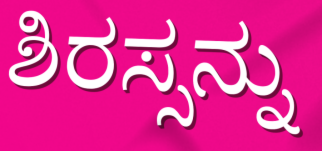
ಶಿರಸ್ಸನ್ನು